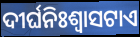
ଦୀର୍ଘନିଃଶ୍ୱାସଟାଏ